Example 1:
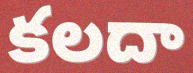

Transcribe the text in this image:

కలదా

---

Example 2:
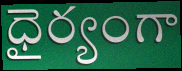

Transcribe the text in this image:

ధైర్యంగా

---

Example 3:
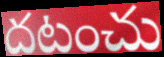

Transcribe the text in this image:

దటంచు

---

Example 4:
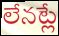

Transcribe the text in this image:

లేనట్లే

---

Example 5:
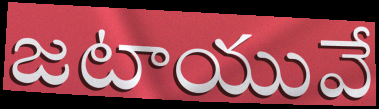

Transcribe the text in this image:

జటాయువే